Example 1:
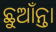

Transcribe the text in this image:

ଛୁଆଁନ୍ତା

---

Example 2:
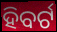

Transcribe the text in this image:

ହିବର୍ଟ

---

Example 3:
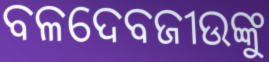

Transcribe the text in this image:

ବଳଦେବଜୀଉଙ୍କୁ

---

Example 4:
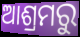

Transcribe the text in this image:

ଆଶ୍ରମରୁ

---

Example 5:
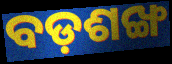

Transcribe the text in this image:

ବଡ଼ଶଙ୍ଖ